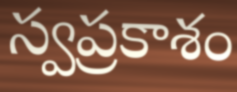
స్వప్రకాశం